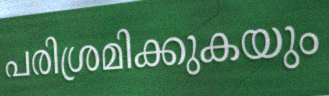
പരിശ്രമിക്കുകയും